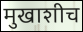
मुखाशीच